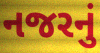
નજરનું